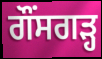
ਗੌਂਸਗੜ੍ਹ